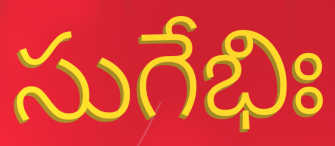
సుగేభిః